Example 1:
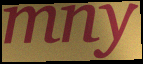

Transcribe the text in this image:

mny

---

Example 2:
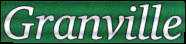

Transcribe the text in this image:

Granville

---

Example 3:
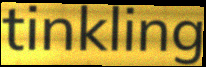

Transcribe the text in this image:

tinkling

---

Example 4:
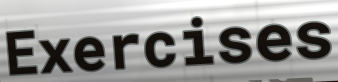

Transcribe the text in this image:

Exercises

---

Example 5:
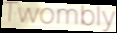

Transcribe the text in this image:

Twombly